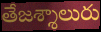
తేజశ్శాలురు